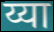
य्या